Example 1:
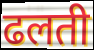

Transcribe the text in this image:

ढलती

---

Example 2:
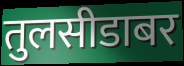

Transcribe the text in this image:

तुलसीडाबर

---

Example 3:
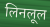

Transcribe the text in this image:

लिनलूल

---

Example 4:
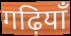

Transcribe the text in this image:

गढ़ियाँ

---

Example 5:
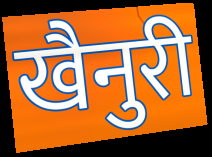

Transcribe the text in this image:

खैनुरी